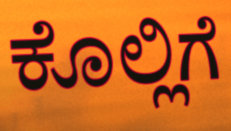
ಕೊಲ್ಲಿಗೆ